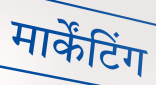
मार्केंटिंग